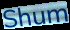
Shum